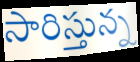
సారిస్తున్న